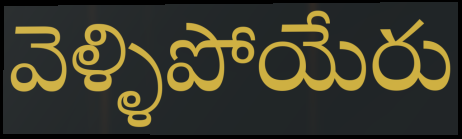
వెళ్ళిపోయేరు